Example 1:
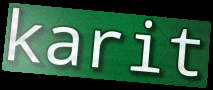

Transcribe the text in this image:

karit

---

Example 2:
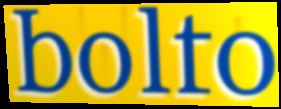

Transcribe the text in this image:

bolto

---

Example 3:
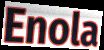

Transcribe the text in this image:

Enola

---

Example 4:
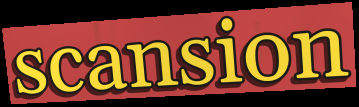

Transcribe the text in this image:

scansion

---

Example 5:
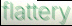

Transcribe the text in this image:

flattery